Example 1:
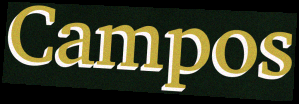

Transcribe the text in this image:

Campos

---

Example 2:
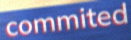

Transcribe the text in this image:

commited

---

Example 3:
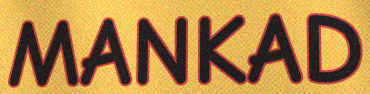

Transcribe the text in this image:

MANKAD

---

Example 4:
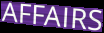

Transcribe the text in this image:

AFFAIRS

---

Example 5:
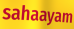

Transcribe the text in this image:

sahaayam